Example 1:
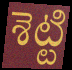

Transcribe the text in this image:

శెట్టి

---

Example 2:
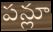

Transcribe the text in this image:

పన్లూ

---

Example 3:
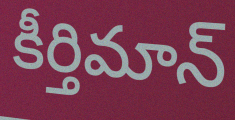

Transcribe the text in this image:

కీర్తిమాన్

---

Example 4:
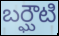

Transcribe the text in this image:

బర్ఘౌటి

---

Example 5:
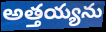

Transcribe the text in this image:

అత్తయ్యను